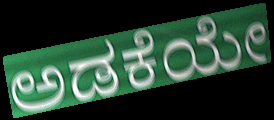
ಅಡಕೆಯೇ